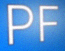
PF